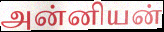
அன்னியன்